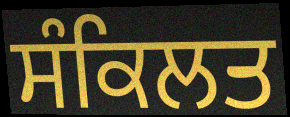
ਸੰਕਿਲਤ